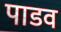
पाडव